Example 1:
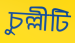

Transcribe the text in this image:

চুল্লীটি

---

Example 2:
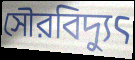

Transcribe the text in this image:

সৌরবিদ্যুৎ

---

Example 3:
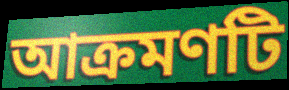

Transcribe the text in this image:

আক্রমণটি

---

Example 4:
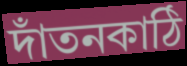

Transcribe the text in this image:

দাঁতনকাঠি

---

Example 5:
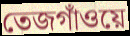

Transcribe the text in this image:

তেজগাঁওয়ে